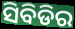
ସିବିଡିର